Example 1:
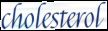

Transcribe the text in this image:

cholesterol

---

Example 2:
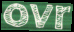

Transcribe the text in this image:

ovr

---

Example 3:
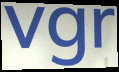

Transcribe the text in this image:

vgr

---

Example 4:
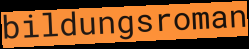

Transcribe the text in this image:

bildungsroman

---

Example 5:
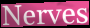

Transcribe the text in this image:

Nerves